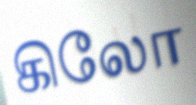
கிலோ